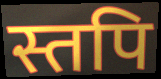
स्‍तपि